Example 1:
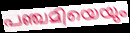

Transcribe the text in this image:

പഞ്ചമിയെയും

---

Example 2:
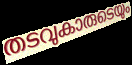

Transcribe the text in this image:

തടവുകാരുടെയും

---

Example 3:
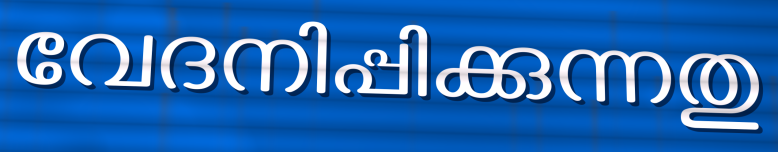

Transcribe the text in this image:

വേദനിപ്പിക്കുന്നതു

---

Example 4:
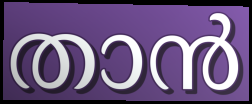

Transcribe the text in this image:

താൻ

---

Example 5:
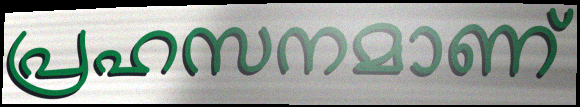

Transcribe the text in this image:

പ്രഹസനമാണ്